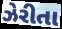
ઝેરીતા